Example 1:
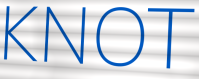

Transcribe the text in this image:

KNOT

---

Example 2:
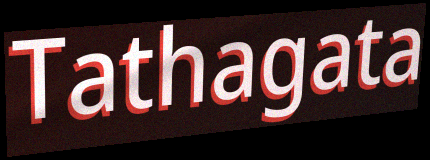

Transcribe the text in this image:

Tathagata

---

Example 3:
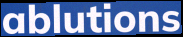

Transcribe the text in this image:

ablutions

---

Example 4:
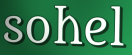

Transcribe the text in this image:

sohel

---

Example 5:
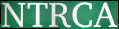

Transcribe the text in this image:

NTRCA